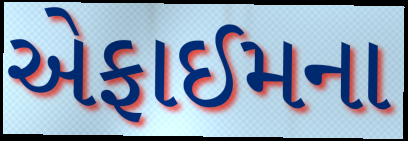
એફાઈમના